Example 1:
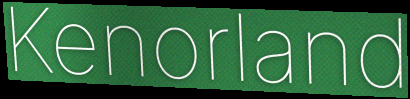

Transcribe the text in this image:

Kenorland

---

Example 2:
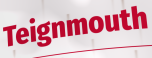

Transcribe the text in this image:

Teignmouth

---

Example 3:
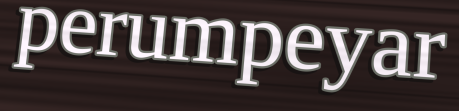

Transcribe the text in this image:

perumpeyar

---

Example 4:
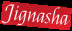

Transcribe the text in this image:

Jignasha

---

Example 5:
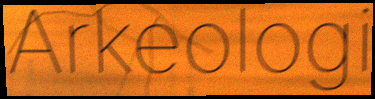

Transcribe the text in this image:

Arkeologi